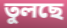
তুলছে